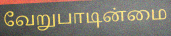
வேறுபாடின்மை